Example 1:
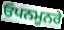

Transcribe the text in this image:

ਓਪਨਮੂਨਰੇ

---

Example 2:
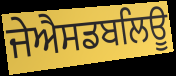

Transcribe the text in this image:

ਜੇਐਸਡਬਲਿਊ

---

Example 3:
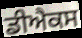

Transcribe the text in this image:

ਡੀਐਕਸ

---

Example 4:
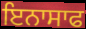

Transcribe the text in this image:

ਇਨਾਸਾਫ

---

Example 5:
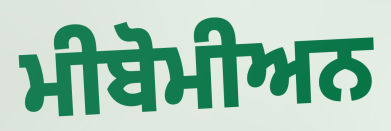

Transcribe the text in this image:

ਮੀਬੋਮੀਅਨ